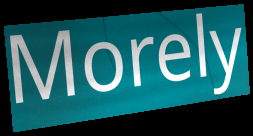
Morely